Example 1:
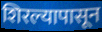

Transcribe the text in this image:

शिरल्यापासून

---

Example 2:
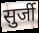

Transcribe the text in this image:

सुर्जी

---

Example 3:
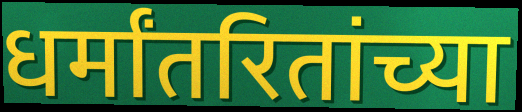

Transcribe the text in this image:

धर्मांतरितांच्या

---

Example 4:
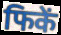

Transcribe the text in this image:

फिकें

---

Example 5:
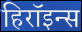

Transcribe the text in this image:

हिरॉइन्स